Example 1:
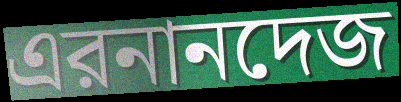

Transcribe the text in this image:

এরনানদেজ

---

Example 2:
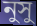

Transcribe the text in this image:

নুসু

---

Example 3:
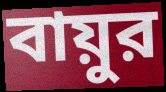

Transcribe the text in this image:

বায়ুর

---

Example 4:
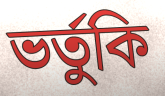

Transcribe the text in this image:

ভর্তুকি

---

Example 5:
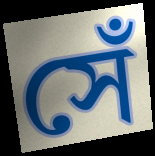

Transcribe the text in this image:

সেঁ